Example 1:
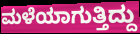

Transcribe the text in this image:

ಮಳೆಯಾಗುತ್ತಿದ್ದು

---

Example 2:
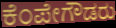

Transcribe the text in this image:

ಕೆಂಪೇಗೌಡರು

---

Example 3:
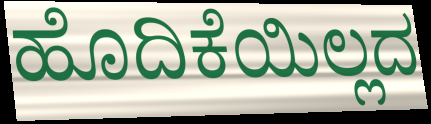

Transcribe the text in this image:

ಹೊದಿಕೆಯಿಲ್ಲದ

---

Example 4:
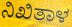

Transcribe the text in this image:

ನಿಖಿತಾಳ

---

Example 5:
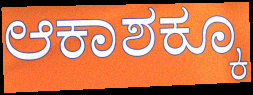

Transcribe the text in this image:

ಆಕಾಶಕ್ಕೂ